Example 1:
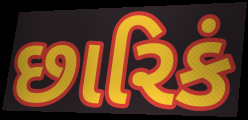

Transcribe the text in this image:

છારિકં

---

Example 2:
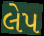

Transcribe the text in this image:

લેપ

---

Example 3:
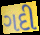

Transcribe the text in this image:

ગદી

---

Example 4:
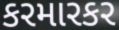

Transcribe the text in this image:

કરમારકર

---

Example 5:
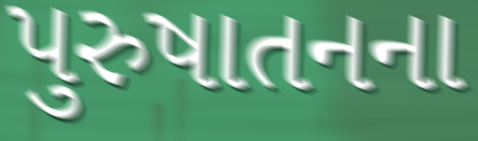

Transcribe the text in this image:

પુરુષાતનના